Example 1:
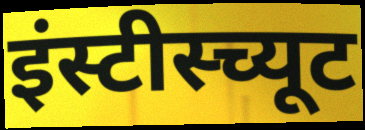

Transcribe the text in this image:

इंस्टीस्च्यूट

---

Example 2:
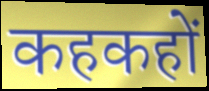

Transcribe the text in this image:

कहकहों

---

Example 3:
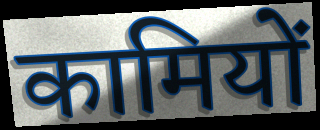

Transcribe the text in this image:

कामियों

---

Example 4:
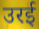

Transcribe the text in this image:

उरई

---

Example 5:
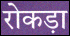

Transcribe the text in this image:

रोकड़ा